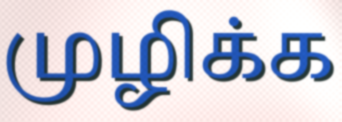
முழிக்க